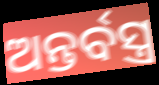
ଅନ୍ତର୍ବସ୍ତ୍ର